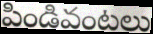
పిండివంటలు